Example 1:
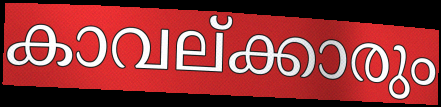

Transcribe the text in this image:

കാവല്ക്കാരും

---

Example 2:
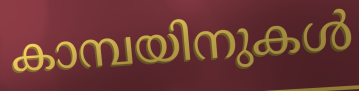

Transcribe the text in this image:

കാമ്പയിനുകൾ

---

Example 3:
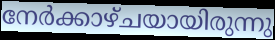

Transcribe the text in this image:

നേർക്കാഴ്ചയായിരുന്നു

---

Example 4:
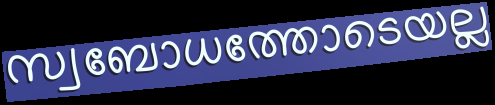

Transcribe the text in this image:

സ്വബോധത്തോടെയല്ല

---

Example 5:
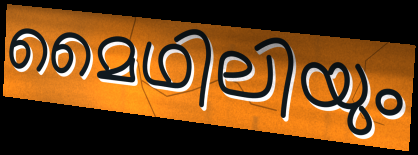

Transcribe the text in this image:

മൈഥിലിയും